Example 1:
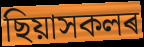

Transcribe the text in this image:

ছিয়াসকলৰ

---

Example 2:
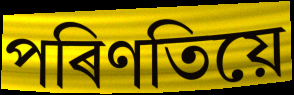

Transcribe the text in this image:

পৰিণতিয়ে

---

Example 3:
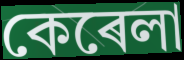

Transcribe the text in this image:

কেৰেলা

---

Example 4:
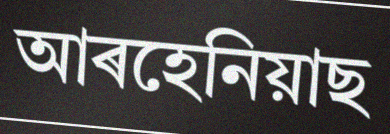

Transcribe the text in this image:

আৰহেনিয়াছ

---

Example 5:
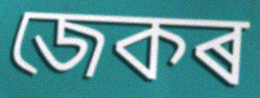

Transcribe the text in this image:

জেকৰ